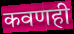
कवणही